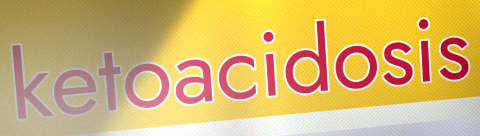
ketoacidosis